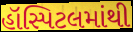
હૉસ્પિટલમાંથી